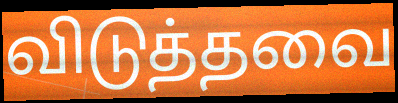
விடுத்தவை